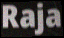
Raja